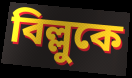
বিল্লুকে